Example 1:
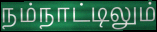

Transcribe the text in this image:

நம்நாட்டிலும்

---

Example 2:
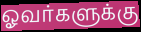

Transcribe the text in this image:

ஓவர்களுக்கு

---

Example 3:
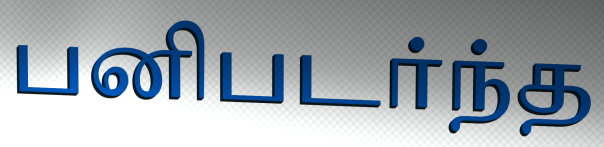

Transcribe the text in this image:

பனிபடர்ந்த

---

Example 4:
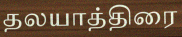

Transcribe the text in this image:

தலயாத்திரை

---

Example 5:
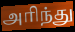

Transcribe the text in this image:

அரிந்து